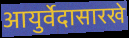
आयुर्वेदासारखे